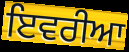
ਇਵਰੀਆ